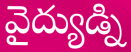
వైద్యుడ్ని